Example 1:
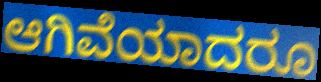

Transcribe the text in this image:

ಆಗಿವೆಯಾದರೂ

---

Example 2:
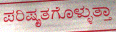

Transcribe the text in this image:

ಪರಿಷ್ಕೃತಗೊಳ್ಳುತ್ತಾ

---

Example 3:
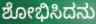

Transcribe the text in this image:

ಶೋಭಿಸಿದನು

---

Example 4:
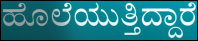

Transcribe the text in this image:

ಹೊಲೆಯುತ್ತಿದ್ದಾರೆ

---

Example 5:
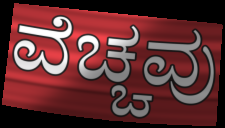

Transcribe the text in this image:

ವೆಚ್ಚವು